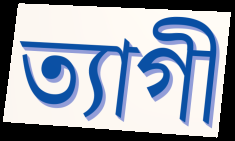
ত্যাগী